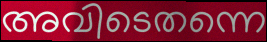
അവിടെതന്നെ